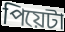
পিয়েটা